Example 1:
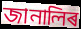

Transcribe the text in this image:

জানালিৰ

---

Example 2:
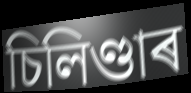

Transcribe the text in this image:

চিলিণ্ডাৰ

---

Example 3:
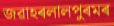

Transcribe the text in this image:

জৱাহৰলালপুৰমৰ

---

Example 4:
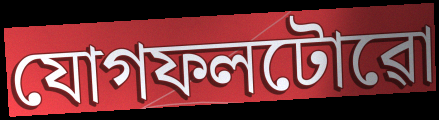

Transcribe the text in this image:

যোগফলটোৱো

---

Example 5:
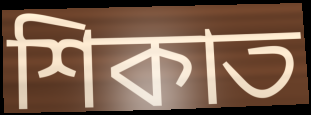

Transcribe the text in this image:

শিকাত